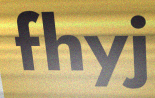
fhyj